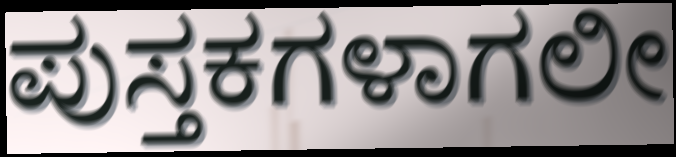
ಪುಸ್ತಕಗಳಾಗಲೀ